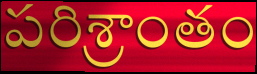
పరిశ్రాంతం